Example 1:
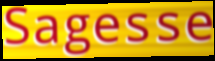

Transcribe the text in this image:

Sagesse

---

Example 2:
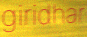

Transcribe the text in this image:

giridhar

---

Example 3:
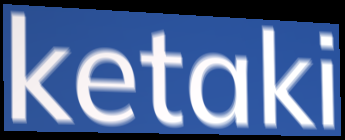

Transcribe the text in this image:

ketaki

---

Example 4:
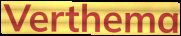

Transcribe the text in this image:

Verthema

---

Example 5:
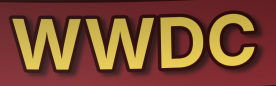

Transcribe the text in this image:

WWDC